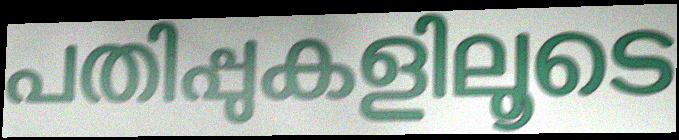
പതിപ്പുകളിലൂടെ